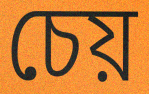
চেয়